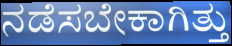
ನಡೆಸಬೇಕಾಗಿತ್ತು